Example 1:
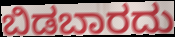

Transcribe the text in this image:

ಬಿಡಬಾರದು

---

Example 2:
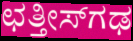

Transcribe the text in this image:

ಛತ್ತೀಸ್‍ಗಢ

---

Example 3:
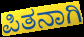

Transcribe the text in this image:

ಪಿತನಾಗಿ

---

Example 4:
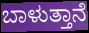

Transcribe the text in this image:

ಬಾಳುತ್ತಾನೆ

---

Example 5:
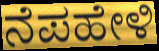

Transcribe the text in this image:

ನೆಪಹೇಳಿ